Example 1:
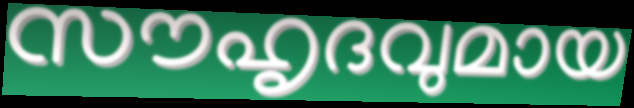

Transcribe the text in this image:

സൗഹൃദവുമായ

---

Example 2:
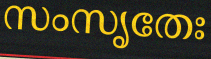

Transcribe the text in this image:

സംസൃതേഃ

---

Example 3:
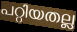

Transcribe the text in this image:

പറ്റിയതല്ല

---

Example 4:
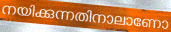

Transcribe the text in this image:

നയിക്കുന്നതിനാലാണോ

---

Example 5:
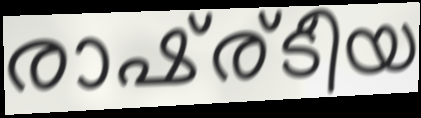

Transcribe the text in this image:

രാഷ്ര്ടീയ